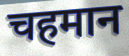
चहमान